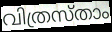
വിത്രസ്താം